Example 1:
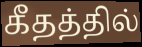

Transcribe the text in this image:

கீதத்தில்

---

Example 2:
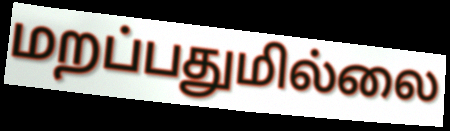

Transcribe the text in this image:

மறப்பதுமில்லை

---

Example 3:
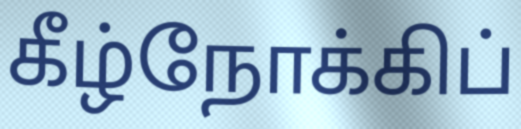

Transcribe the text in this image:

கீழ்நோக்கிப்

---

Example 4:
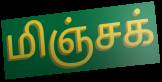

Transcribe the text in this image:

மிஞ்சக்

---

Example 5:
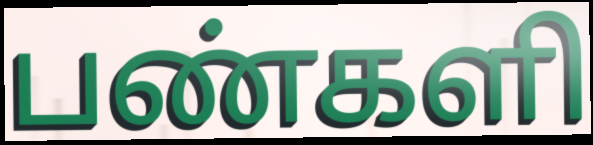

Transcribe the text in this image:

பண்களி